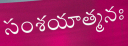
సంశయాత్మనః